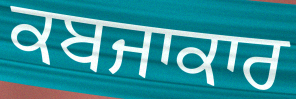
ਕਬਜਾਕਾਰ